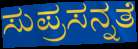
ಸುಪ್ರಸನ್ನತೆ